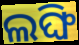
ଲଙ୍ଘି